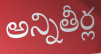
అన్నితీర్ల